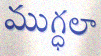
ముగ్ధలా